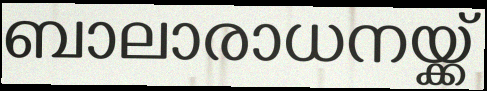
ബാലാരാധനയ്ക്ക്